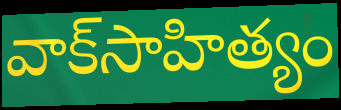
వాక్‌సాహిత్యం